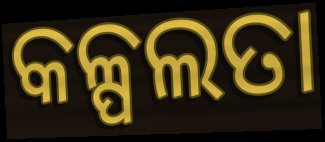
କଳ୍ପଲତା